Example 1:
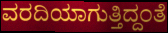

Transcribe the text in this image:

ವರದಿಯಾಗುತ್ತಿದ್ದಂತೆ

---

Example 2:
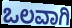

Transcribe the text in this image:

ಒಲವಾಗಿ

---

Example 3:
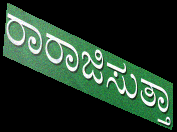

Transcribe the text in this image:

ರಾರಾಜಿಸುತ್ತಾ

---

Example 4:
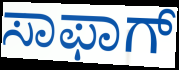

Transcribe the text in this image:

ಸಾಫಾಗ್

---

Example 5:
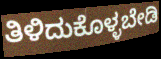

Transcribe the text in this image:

ತಿಳಿದುಕೊಳ್ಳಬೇಡಿ